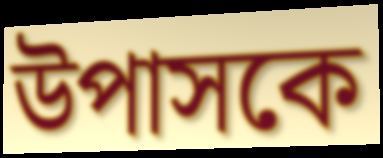
উপাসকে